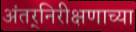
अंतर्निरीक्षणाच्या